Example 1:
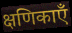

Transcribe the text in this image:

क्षणिकाएँ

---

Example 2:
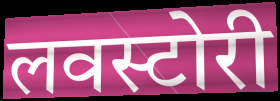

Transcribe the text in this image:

लवस्‍टोरी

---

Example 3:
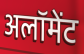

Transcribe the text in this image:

अलॉमेंट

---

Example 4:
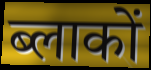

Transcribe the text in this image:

ब्लाकों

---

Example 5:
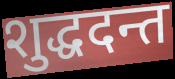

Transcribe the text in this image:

शुद्धदन्त